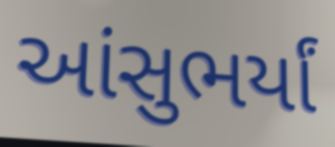
આંસુભર્યાં